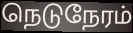
நெடுநேரம்